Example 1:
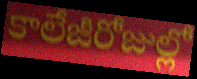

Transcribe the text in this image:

కాలేజీరోజుల్లో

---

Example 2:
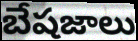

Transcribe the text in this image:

బేషజాలు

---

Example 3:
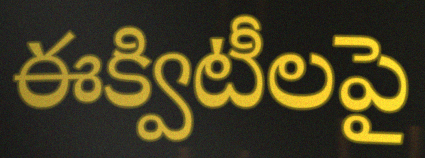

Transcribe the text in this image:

ఈక్విటీలపై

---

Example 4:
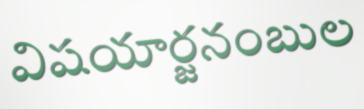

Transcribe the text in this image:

విషయార్జనంబుల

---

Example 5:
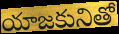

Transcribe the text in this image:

యాజకునితో